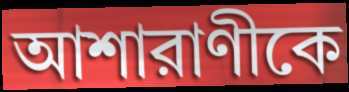
আশারাণীকে